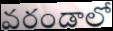
వరండాలో